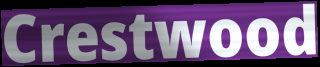
Crestwood